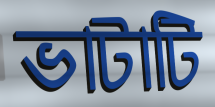
ভাটাটি